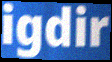
igdir